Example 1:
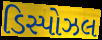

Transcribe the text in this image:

ડિસ્પોઝલ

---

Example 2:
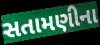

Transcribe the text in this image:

સતામણીના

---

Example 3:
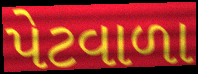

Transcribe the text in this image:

પેટવાળા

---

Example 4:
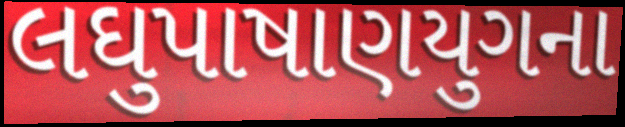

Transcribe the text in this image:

લઘુપાષાણયુગના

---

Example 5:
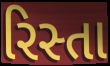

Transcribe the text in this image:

રિસ્તા